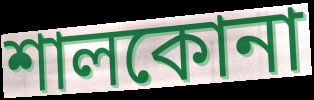
শালকোনা